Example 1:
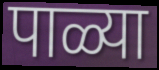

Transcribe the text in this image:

पाळ्या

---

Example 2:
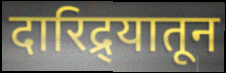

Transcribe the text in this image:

दारिद्र्यातून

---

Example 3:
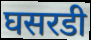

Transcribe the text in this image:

घसरडी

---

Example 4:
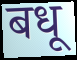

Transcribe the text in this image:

बधू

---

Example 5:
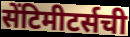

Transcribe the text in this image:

सेंटिमीटर्सची